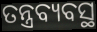
ତନ୍ତ୍ରବ୍ୟବସ୍ଥ